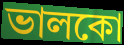
ভালকো